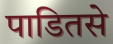
पाडितसे